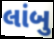
લાંબુ